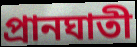
প্রানঘাতী